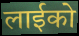
लाईको